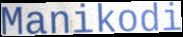
Manikodi